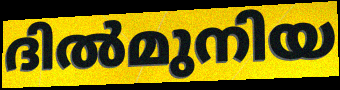
ദിൽമുനിയ